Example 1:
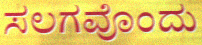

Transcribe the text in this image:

ಸಲಗವೊಂದು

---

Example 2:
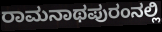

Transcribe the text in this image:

ರಾಮನಾಥಪುರಂನಲ್ಲಿ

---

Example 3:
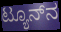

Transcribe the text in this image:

ಟ್ಯೂನ್‌ನ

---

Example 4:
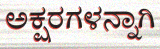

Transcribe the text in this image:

ಅಕ್ಷರಗಳನ್ನಾಗಿ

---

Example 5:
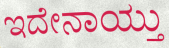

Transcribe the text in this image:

ಇದೇನಾಯ್ತು